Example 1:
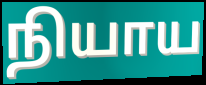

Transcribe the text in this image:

நியாய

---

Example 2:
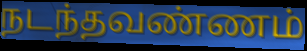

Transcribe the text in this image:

நடந்தவண்ணம்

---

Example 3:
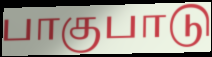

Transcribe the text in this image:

பாகுபாடு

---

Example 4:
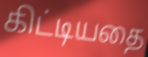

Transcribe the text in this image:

கிட்டியதை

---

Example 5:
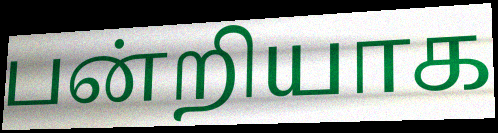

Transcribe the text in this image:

பன்றியாக